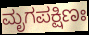
ಮೃಗಪಕ್ಷಿಣಃ